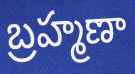
బ్రహ్మణా